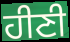
ਹੀਣੀ